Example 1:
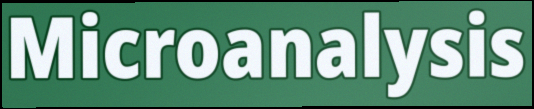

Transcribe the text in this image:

Microanalysis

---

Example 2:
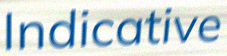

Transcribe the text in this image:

Indicative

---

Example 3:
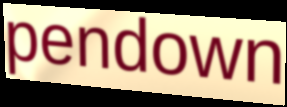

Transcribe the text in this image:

pendown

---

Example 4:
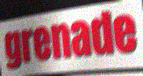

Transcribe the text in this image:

grenade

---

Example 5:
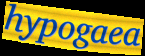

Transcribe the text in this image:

hypogaea